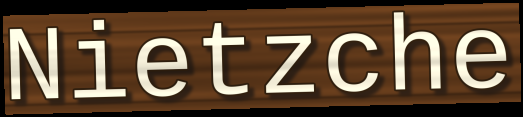
Nietzche